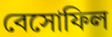
বেসোফিল